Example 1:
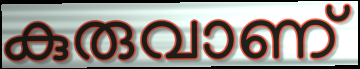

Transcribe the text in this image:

കുരുവാണ്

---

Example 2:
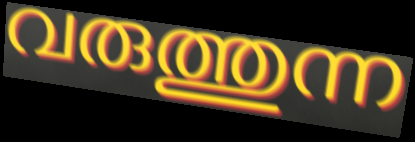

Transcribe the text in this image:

വരുത്തുന്ന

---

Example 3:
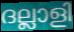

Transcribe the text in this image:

ദല്ലാളി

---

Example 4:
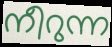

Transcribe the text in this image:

നീറുന്ന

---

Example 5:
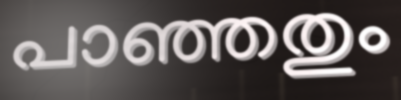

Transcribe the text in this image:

പാഞ്ഞതും